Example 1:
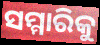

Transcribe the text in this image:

ସମ୍ମାରିକୁ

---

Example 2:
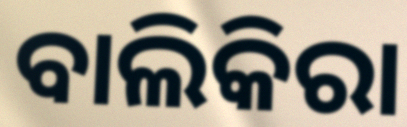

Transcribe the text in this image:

ବାଲିକିରା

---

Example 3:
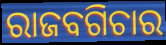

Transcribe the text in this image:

ରାଜବଗିଚାର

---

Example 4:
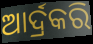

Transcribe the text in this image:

ଆର୍ଦ୍ରକରି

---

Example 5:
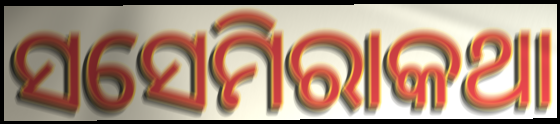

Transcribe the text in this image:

ସସେମିରାକଥା